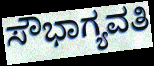
ಸೌಭಾಗ್ಯವತಿ